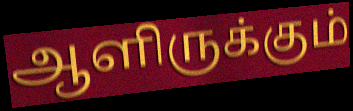
ஆளிருக்கும்